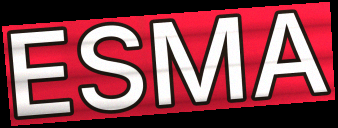
ESMA